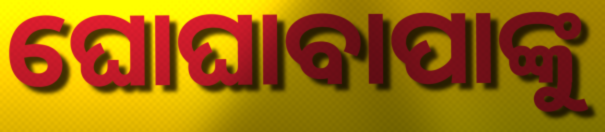
ଘୋଘାବାପାଙ୍କୁ